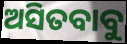
ଅସିତବାବୁ